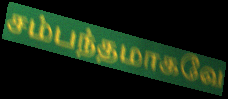
சம்பந்தமாகவே